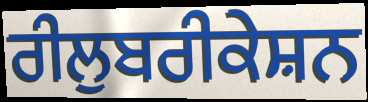
ਰੀਲੁਬਰੀਕੇਸ਼ਨ